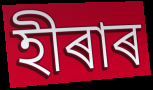
হীৰাৰ